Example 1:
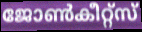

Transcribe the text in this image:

ജോൺകീറ്റ്സ്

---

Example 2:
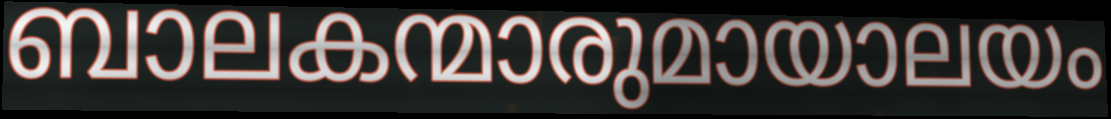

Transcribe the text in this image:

ബാലകന്മാരുമായാലയം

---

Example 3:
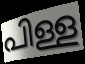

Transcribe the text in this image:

പിള്ള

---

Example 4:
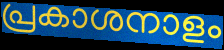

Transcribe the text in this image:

പ്രകാശനാളം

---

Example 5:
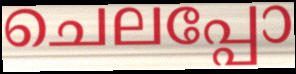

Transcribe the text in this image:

ചെലപ്പോ